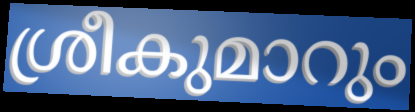
ശ്രീകുമാറും